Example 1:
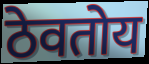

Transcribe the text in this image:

ठेवतोय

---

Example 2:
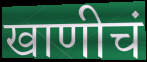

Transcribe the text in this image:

खाणीचं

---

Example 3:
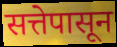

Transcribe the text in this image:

सत्तेपासून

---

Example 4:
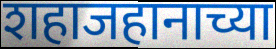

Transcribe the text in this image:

शहाजहानाच्या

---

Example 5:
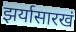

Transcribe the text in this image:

झर्यासारखं